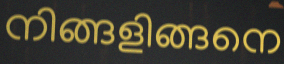
നിങ്ങളിങ്ങനെ